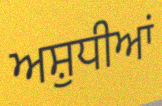
ਅਸ਼ੁਧੀਆਂ